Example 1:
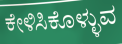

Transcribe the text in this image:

ಕೇಳಿಸಿಕೊಳ್ಳುವ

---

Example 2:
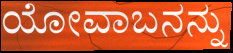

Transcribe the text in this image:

ಯೋವಾಬನನ್ನು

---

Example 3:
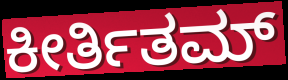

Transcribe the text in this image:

ಕೀರ್ತಿತಮ್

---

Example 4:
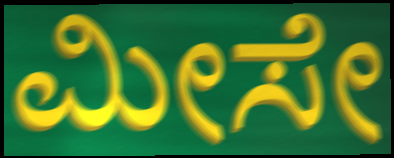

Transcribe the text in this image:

ಮೀಸೇ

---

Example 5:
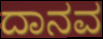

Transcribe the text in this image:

ದಾನವ